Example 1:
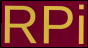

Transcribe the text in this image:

RPi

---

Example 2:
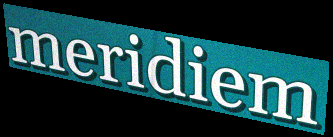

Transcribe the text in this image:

meridiem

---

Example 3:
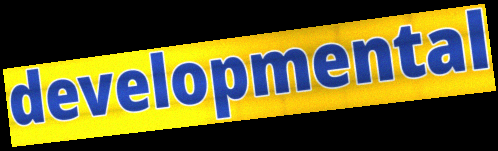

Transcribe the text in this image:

developmental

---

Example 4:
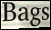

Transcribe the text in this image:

Bags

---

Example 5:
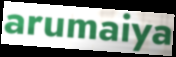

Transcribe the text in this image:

arumaiya